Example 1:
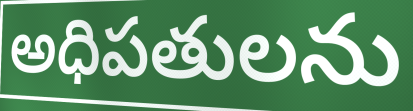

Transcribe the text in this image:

అధిపతులను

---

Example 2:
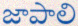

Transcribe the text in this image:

జాపాలి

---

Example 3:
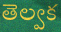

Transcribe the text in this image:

తెల్వక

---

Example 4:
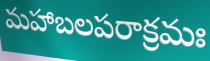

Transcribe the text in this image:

మహాబలపరాక్రమః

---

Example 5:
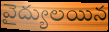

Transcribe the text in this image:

వైద్యులయిన